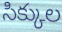
సిక్కుల